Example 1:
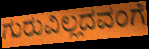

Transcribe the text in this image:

ಗುರುವಿಲ್ಲದವಂಗೆ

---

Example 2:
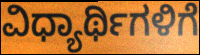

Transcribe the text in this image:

ವಿಧ್ಯಾರ್ಥಿಗಳಿಗೆ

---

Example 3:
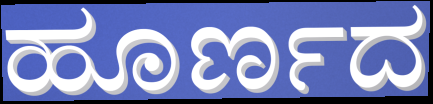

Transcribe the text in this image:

ಹೂರ್ಣದ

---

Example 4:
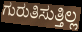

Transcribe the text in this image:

ಗುರುತಿಸುತ್ತಿಲ್ಲ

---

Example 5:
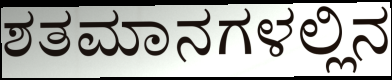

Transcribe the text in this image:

ಶತಮಾನಗಳಲ್ಲಿನ